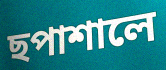
ছপাশালে